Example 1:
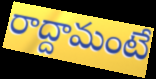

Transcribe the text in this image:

రాద్దామంటే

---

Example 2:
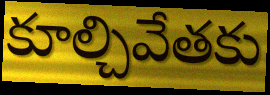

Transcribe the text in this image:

కూల్చివేతకు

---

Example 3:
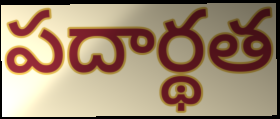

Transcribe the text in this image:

పదార్థత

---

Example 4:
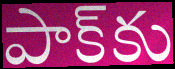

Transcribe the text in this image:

పాక్‌కు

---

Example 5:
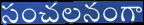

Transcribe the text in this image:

సంచలనంగా